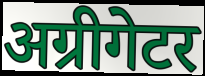
अग्रीगेटर